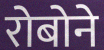
रोबोने